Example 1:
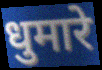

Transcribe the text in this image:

धुमारे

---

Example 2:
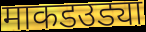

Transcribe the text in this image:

माकडउड्या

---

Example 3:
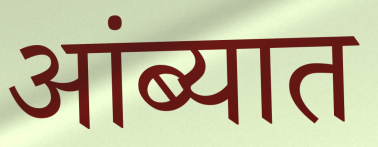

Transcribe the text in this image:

आंब्यात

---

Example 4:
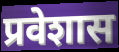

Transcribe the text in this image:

प्रवेशास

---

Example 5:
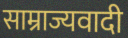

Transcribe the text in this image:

साम्राज्यवादी